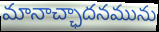
మానాచ్ఛాదనమును